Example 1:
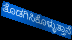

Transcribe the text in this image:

ತೊಡಗಿಸಿಕೊಳ್ಳುತ್ತಾನೆ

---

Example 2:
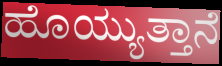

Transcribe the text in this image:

ಹೊಯ್ಯುತ್ತಾನೆ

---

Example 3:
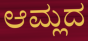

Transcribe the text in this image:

ಆಮ್ಲದ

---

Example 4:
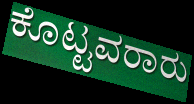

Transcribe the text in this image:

ಕೊಟ್ಟವರಾರು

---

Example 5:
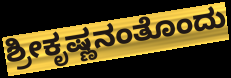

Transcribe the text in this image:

ಶ್ರೀಕೃಷ್ಣನಂತೊಂದು